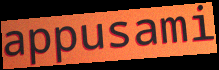
appusami